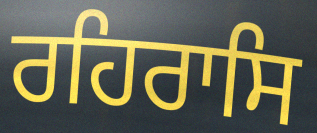
ਰਹਿਰਾਸਿ